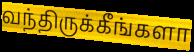
வந்திருக்கீங்களா